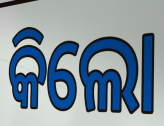
କିଲୋ